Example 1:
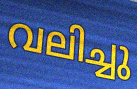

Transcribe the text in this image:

വലിച്ചു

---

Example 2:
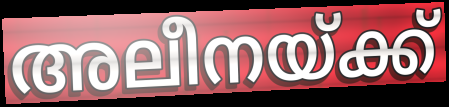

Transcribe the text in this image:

അലീനയ്ക്ക്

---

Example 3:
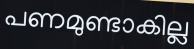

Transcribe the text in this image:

പണമുണ്ടാകില്ല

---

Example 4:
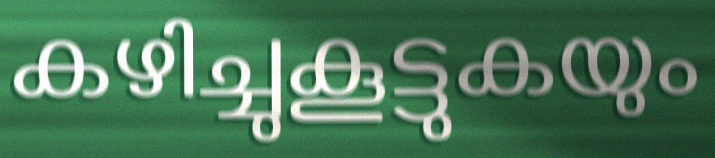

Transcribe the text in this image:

കഴിച്ചുകൂട്ടുകയും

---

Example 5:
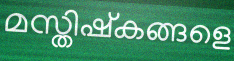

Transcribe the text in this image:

മസ്തിഷ്കങ്ങളെ